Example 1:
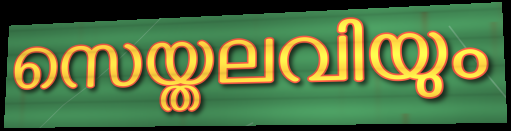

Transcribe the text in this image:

സെയ്തലവിയും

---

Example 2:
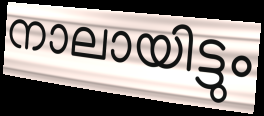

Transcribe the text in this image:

നാലായിട്ടും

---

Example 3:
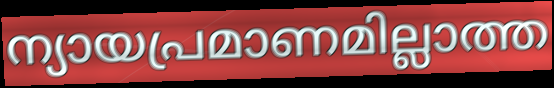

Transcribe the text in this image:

ന്യായപ്രമാണമില്ലാത്ത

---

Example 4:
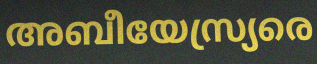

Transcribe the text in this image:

അബീയേസ്ര്യരെ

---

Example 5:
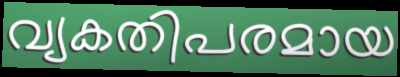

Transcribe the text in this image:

വ്യകതിപരമായ